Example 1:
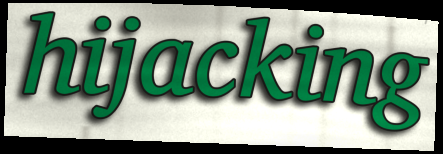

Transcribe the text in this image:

hijacking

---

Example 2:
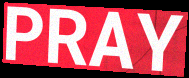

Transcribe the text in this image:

PRAY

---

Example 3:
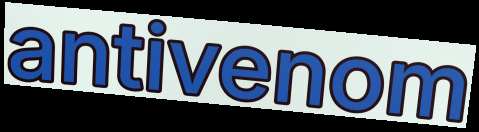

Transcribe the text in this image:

antivenom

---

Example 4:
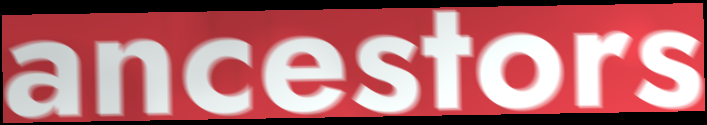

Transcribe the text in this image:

ancestors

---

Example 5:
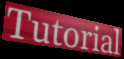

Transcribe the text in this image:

Tutorial